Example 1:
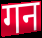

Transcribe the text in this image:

गन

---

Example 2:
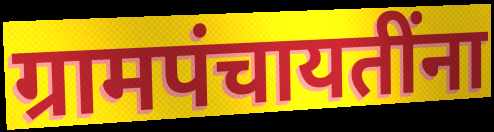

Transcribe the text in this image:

ग्रामपंचायतींना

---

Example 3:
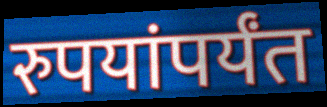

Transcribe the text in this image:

रुपयांपर्यंत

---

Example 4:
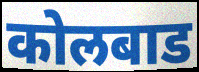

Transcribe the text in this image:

कोलबाड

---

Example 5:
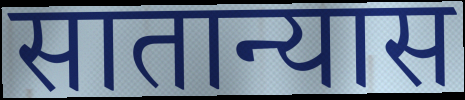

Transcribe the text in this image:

सातान्यास